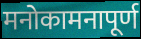
मनोकामनापूर्ण